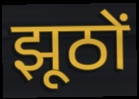
झूठों